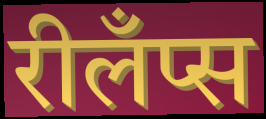
रीलँप्स